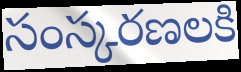
సంస్కరణలకి